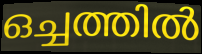
ഒച്ചത്തിൽ